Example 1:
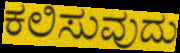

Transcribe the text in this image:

ಕಲಿಸುವುದು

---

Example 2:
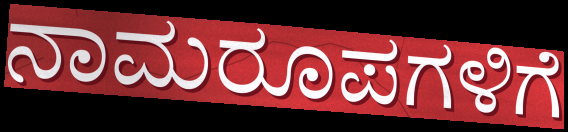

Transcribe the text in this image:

ನಾಮರೂಪಗಳಿಗೆ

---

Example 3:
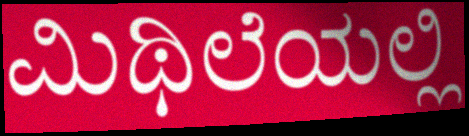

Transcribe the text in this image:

ಮಿಥಿಲೆಯಲ್ಲಿ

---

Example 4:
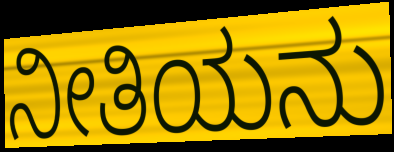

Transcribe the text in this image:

ನೀತಿಯನು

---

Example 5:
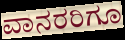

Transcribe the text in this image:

ವಾನರರಿಗೂ